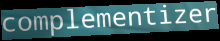
complementizer